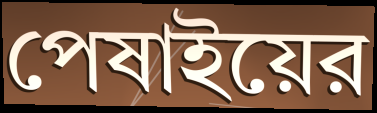
পেষাইয়ের